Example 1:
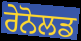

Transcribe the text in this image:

ਰੇਨੋਲਡ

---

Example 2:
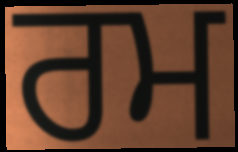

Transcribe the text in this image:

ਰਮ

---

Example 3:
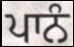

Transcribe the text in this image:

ਪਾਨੰ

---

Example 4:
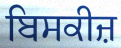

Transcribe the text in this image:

ਬਿਸਕੀਜ਼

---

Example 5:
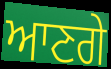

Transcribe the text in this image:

ਆਣਗੇ